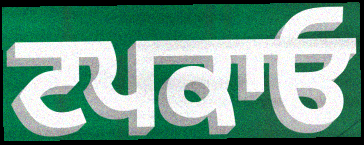
ਟਪਕਾਓ